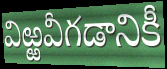
విఱ్ఱవీగడానికీ